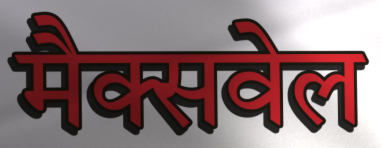
मैक्सवेल